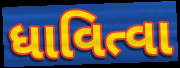
ધાવિત્વા